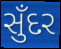
સુઁદર